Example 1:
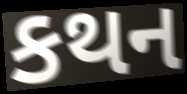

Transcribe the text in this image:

કથન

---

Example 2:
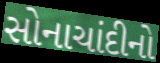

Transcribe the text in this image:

સોનાચાંદીનો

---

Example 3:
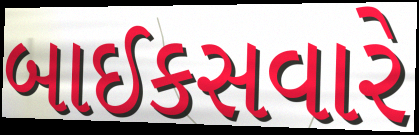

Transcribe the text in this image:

બાઈકસવારે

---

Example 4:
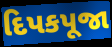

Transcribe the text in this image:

દિપકપૂજા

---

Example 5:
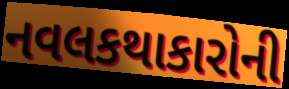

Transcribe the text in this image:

નવલકથાકારોની